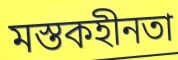
মস্তকহীনতা